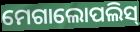
ମେଗାଲୋପଲିସ୍